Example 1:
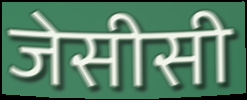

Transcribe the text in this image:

जेसीसी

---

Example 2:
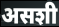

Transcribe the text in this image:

असशी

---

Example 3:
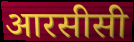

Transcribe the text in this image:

आरसीसी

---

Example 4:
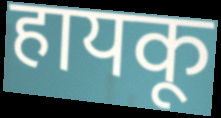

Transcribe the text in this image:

हायकू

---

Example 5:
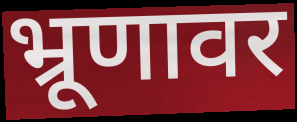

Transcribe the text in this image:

भ्रूणावर